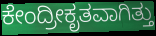
ಕೇಂದ್ರೀಕೃತವಾಗಿತ್ತು